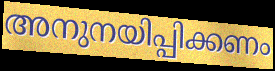
അനുനയിപ്പിക്കണം